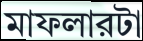
মাফলারটা